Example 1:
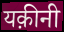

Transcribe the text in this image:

यक़ीनी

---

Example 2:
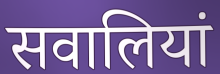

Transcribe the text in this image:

सवालियां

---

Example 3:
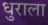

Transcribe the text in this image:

धुराला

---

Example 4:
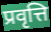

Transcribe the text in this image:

प्रवृत्ति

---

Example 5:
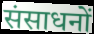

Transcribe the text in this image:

संसाधनों